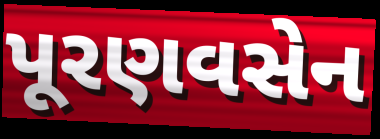
પૂરણવસેન